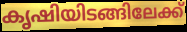
കൃഷിയിടങ്ങിലേക്ക്